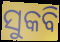
ସୁକବି